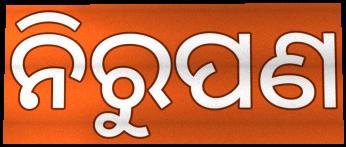
ନିରୁପଣ